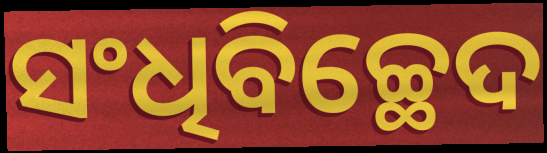
ସଂଧିବିଚ୍ଛେଦ